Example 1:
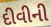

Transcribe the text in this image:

દીવીની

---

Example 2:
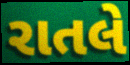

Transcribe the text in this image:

રાતલે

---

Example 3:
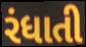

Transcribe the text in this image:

રંધાતી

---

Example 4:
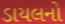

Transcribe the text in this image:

ડાયલનો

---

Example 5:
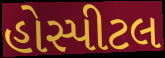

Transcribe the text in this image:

હોસ્પીટલ